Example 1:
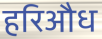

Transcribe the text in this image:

हरिऔध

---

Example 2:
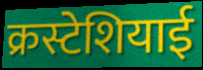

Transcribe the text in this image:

क्रस्टेशियाई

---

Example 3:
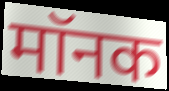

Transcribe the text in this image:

मॉनक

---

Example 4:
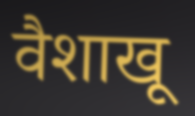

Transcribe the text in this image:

वैशाखू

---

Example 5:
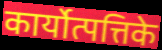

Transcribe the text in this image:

कार्योत्पत्तिके